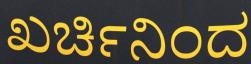
ಖರ್ಚಿನಿಂದ